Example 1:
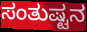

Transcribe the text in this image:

ಸಂತುಷ್ಟನ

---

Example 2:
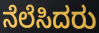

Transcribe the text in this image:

ನೆಲೆಸಿದರು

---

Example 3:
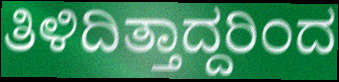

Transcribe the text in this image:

ತಿಳಿದಿತ್ತಾದ್ದರಿಂದ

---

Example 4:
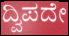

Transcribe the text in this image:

ದ್ವಿಪದೇ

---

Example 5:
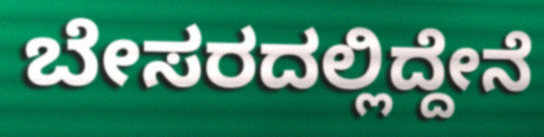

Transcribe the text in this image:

ಬೇಸರದಲ್ಲಿದ್ದೇನೆ